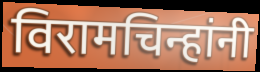
विरामचिन्हांनी